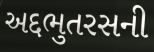
અદ્દભુતરસની